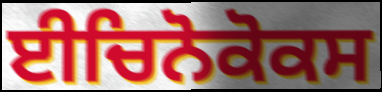
ਈਚਿਨੋਕੋਕਸ